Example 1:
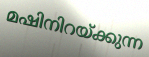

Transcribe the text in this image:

മഷിനിറയ്ക്കുന്ന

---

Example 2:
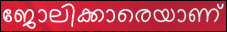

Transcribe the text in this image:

ജോലിക്കാരെയാണ്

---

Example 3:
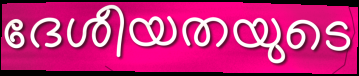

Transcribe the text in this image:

ദേശീയതയുടെ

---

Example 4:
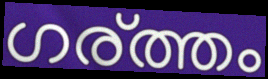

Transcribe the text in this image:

ഗര്ത്തം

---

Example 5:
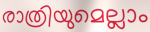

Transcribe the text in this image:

രാത്രിയുമെല്ലാം